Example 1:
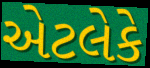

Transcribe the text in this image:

એટલેકે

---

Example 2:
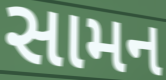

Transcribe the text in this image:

સામન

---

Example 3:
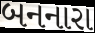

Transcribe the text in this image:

બનનારા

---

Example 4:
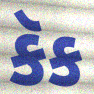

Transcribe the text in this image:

કૅક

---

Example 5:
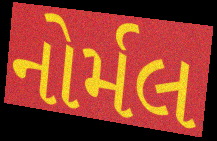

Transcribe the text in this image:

નોર્મલ